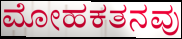
ಮೋಹಕತನವು